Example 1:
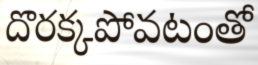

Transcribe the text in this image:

దొరక్కపోవటంతో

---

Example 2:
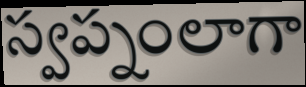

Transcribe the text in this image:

స్వప్నంలాగా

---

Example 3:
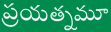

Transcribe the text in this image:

ప్రయత్నమూ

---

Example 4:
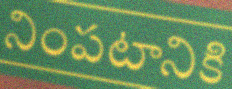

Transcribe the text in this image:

నింపటానికి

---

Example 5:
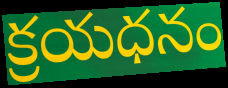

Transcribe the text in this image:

క్రయధనం